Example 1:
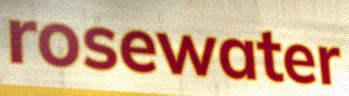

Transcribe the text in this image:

rosewater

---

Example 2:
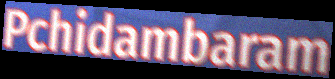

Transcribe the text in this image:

Pchidambaram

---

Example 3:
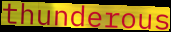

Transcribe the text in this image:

thunderous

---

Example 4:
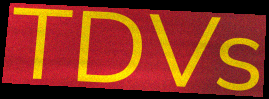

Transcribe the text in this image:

TDVs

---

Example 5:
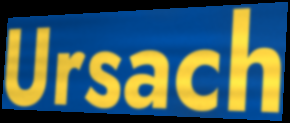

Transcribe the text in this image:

Ursach